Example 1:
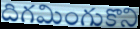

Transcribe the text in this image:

దిగమింగుకొని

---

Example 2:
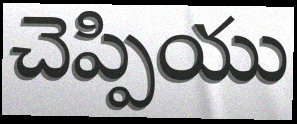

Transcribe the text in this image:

చెప్పియు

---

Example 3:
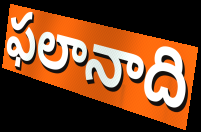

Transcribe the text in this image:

ఫలానాది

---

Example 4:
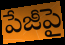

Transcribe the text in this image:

పేజీపై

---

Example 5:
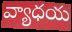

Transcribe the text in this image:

వ్యాధయ